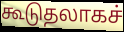
கூடுதலாகச்